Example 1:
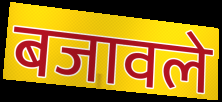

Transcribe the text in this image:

बजावले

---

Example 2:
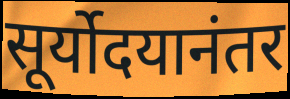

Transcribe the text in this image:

सूर्योदयानंतर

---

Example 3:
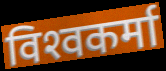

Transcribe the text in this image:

विश्वकर्मा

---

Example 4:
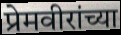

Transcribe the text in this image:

प्रेमवीरांच्या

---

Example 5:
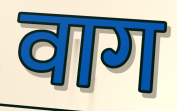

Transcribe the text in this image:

वाग